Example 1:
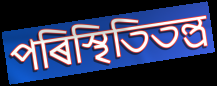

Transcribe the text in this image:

পৰিস্থিতিতন্ত্ৰ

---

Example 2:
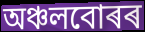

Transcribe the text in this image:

অঞ্চলবোৰৰ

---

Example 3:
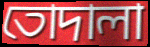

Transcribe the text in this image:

তোদালা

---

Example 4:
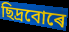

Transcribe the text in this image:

ছিদ্ৰবোৰে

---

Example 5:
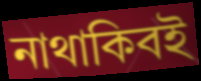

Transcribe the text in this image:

নাথাকিবই